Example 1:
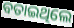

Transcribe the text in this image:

ବତାଇଥିଲେ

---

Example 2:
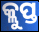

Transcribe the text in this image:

କ୍ଲୁପ୍ତ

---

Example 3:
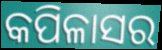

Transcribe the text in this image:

କପିଳାସର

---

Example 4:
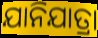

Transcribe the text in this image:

ଯାନିଯାତ୍ରା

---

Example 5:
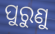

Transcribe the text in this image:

ପୁରୁଣୁ